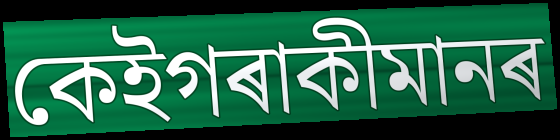
কেইগৰাকীমানৰ